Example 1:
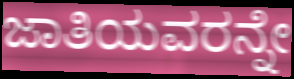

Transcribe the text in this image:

ಜಾತಿಯವರನ್ನೇ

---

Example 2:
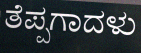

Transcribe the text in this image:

ತೆಪ್ಪಗಾದಳು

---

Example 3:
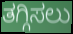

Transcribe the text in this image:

ತಗ್ಗಿಸಲು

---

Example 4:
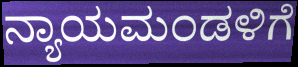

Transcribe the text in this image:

ನ್ಯಾಯಮಂಡಳಿಗೆ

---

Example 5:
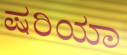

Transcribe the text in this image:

ಷರಿಯಾ